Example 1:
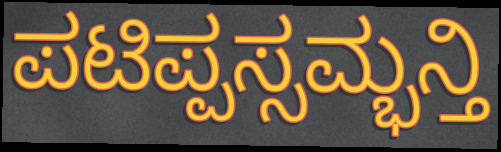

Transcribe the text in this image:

ಪಟಿಪ್ಪಸ್ಸಮ್ಭನ್ತಿ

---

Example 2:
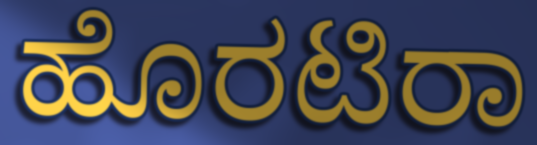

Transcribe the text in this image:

ಹೊರಟಿರಾ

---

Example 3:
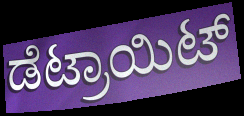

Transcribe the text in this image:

ಡೆಟ್ರಾಯಿಟ್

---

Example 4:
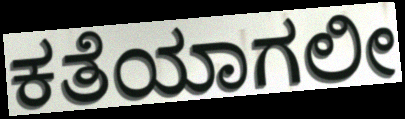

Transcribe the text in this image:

ಕತೆಯಾಗಲೀ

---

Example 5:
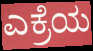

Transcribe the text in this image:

ಎಕ್ರೆಯ